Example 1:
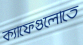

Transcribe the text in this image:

ক্যাফেগুলোতে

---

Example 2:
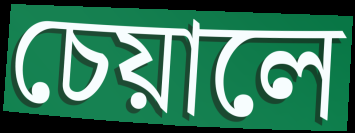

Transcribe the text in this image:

চেয়ালে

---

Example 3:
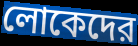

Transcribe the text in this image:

লোকেদের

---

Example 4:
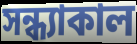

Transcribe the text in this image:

সন্ধ্যাকাল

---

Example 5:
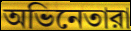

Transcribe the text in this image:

অভিনেতারা